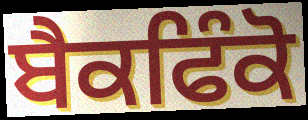
ਬੈਕਫਿੰਕੋ